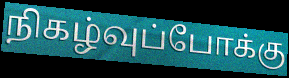
நிகழ்வுப்போக்கு